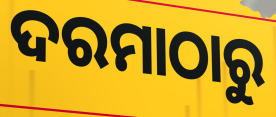
ଦରମାଠାରୁ